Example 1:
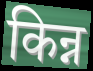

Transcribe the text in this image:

किन्न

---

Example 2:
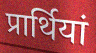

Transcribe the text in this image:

प्रार्थियां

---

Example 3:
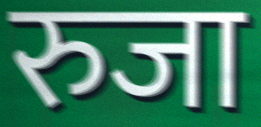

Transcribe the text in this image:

रुजा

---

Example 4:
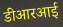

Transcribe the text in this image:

डीआरआई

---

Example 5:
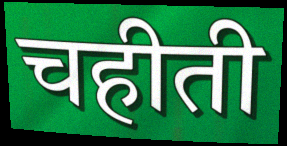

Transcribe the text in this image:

चहीती